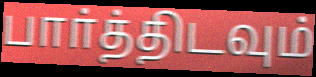
பார்த்திடவும்